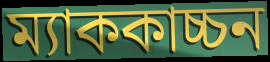
ম্যাককাচ্চন